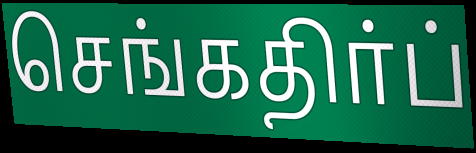
செங்கதிர்ப்